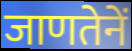
जाणतेनें